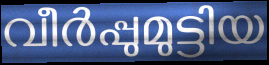
വീർപ്പുമുട്ടിയ